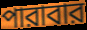
পারাবার